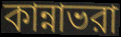
কান্নাভরা